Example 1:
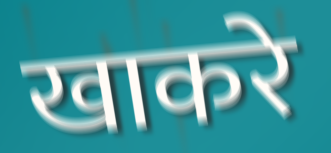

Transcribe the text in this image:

खाकरे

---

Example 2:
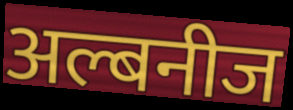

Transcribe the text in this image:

अल्‍बनीज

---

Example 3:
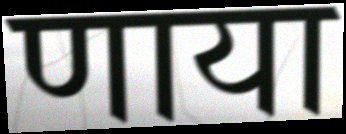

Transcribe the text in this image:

णाया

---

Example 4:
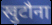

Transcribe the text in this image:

खुटौना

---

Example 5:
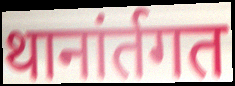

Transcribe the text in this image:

थानांर्तगत